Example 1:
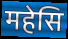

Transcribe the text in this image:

महेसि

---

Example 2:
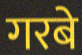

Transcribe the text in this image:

गरबे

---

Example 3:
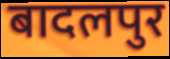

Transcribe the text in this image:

बादलपुर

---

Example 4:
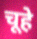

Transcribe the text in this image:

चूहे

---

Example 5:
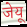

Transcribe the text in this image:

जेयू